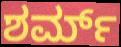
ಶರ್ಮ್